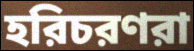
হরিচরণরা